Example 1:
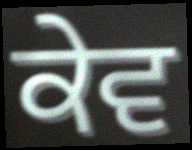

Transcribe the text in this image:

ਕੇਵ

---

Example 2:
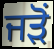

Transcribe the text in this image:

ਜਡ਼ੋਂ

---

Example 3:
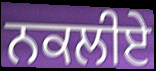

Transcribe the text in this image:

ਨਕਲੀਏ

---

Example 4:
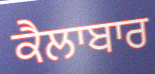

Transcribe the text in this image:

ਕੈਲਾਬਾਰ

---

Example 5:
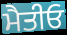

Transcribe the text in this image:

ਮੈਤੀਓ